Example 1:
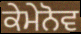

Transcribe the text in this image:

ਕੇਮੇਨੋਵ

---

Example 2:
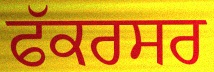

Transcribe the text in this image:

ਫੱਕਰਸਰ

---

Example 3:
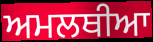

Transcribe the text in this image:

ਅਮਲਥੀਆ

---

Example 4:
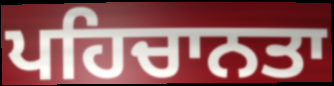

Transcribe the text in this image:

ਪਹਿਚਾਨਤਾ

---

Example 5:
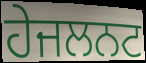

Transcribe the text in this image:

ਹੇਜਲਨਟ